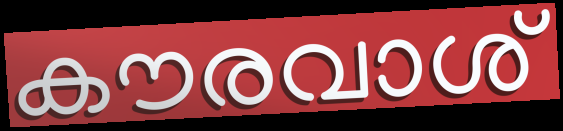
കൗരവാശ്